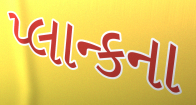
પ્લાન્કના